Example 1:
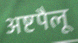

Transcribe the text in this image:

अष्टपैलू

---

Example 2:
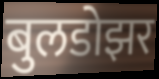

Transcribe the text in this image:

बुलडोझर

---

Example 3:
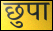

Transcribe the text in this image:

छुपा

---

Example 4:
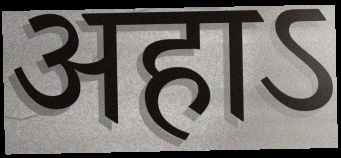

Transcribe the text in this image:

अहाऽ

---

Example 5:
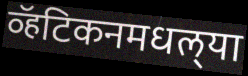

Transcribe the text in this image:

व्हॅटिकनमधल्या